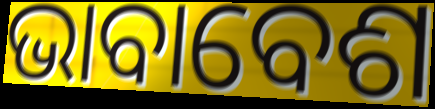
ଭାବାବେଶ